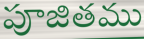
పూజితము